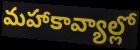
మహాకావ్యాల్లో